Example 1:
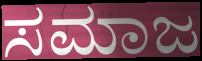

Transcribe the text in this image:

ಸಮಾಜ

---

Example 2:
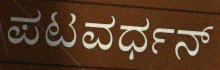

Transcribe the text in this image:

ಪಟವರ್ಧನ್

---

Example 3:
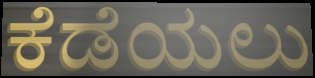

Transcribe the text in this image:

ಕೆಡೆಯಲು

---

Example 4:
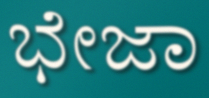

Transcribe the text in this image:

ಭೇಜಾ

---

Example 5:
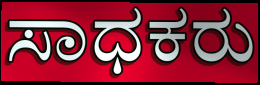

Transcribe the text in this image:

ಸಾಧಕರು